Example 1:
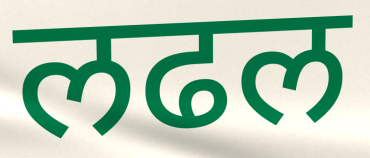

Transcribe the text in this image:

लढल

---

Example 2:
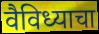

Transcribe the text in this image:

वैविध्याचा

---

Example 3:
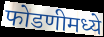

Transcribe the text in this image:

फोडणीमध्ये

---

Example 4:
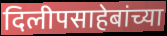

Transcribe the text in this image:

दिलीपसाहेबांच्या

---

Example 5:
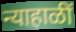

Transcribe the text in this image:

न्याहाळीं